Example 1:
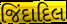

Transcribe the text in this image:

જિંદાદિલ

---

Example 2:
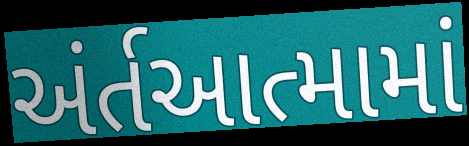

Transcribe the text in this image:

અંર્તઆત્મામાં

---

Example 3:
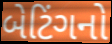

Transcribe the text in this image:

બેટિંગનો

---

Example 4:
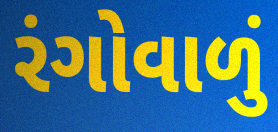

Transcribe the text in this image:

રંગોવાળું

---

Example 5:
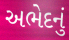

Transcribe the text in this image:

અભેદનું